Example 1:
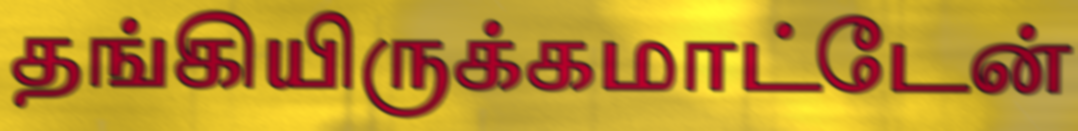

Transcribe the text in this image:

தங்கியிருக்கமாட்டேன்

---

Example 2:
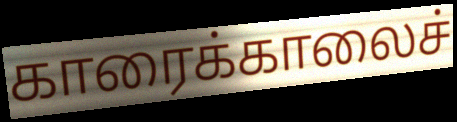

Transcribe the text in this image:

காரைக்காலைச்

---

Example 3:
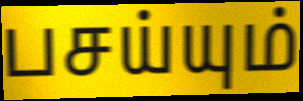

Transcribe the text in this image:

பசய்யும்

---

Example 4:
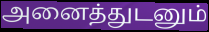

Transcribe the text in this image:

அனைத்துடனும்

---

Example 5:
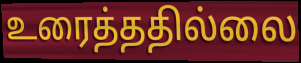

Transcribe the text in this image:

உரைத்ததில்லை